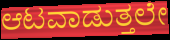
ಆಟವಾಡುತ್ತಲೇ